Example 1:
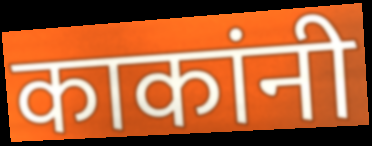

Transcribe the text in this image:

काकांनी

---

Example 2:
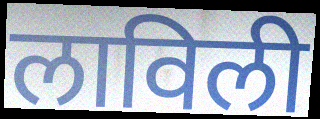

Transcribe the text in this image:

लाविली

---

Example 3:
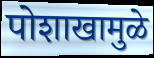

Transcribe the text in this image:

पोशाखामुळे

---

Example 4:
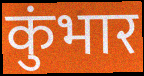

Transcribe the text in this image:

कुंभार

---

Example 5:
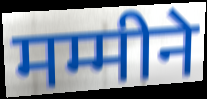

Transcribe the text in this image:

मम्मीने